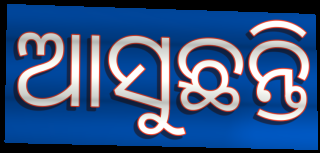
ଆସୁଛନ୍ତି